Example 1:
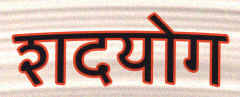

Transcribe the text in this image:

शदयोग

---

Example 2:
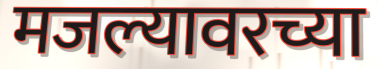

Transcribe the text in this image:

मजल्यावरच्या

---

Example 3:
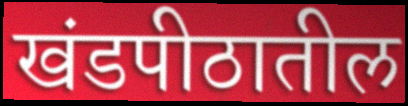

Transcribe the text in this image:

खंडपीठातील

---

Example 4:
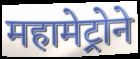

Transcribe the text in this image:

महामेट्रोने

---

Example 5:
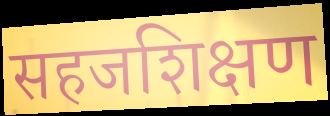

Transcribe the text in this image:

सहजशिक्षण